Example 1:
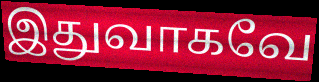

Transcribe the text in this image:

இதுவாகவே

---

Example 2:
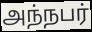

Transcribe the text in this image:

அந்நபர்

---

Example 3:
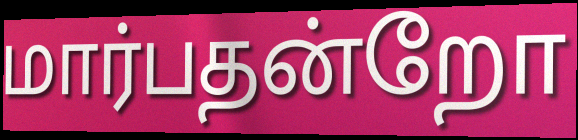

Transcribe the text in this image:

மார்பதன்றோ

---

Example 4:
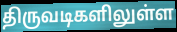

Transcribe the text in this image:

திருவடிகளிலுள்ள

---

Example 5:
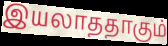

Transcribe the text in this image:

இயலாததாகும்